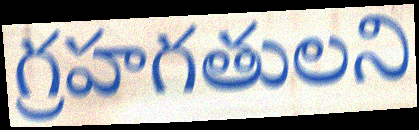
గ్రహగతులని